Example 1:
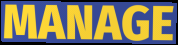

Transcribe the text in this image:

MANAGE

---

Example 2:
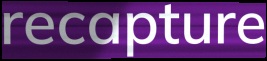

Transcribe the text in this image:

recapture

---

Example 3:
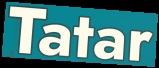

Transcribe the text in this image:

Tatar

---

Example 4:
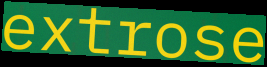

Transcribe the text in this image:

extrose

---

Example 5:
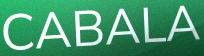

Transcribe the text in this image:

CABALA